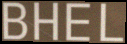
BHEL